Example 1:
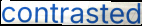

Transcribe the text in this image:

contrasted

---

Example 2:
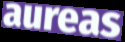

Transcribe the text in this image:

aureas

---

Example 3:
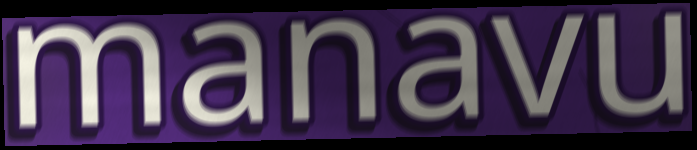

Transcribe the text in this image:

manavu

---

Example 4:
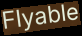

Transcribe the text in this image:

Flyable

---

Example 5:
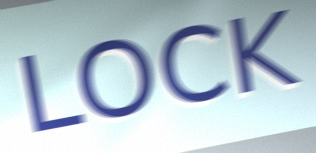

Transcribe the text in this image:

LOCK